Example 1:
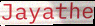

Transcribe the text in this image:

Jayathe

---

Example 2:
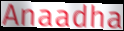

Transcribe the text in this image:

Anaadha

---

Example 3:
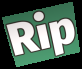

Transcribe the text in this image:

Rip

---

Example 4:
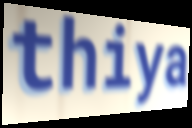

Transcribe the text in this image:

thiya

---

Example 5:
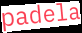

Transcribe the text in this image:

padela